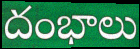
దంభాలు